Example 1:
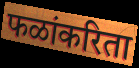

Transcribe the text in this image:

फळांकरिता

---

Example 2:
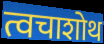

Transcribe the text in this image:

त्वचाशोथ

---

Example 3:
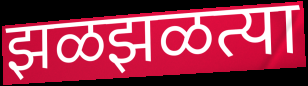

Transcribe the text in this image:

झळझळत्या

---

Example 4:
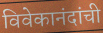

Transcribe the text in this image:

विवेकानंदांची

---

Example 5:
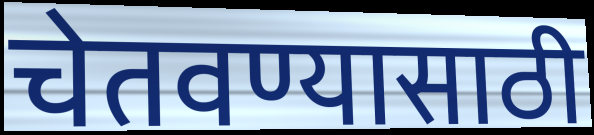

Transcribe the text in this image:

चेतवण्यासाठी